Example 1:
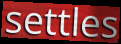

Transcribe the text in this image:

settles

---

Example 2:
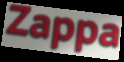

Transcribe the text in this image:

Zappa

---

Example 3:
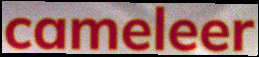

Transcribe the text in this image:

cameleer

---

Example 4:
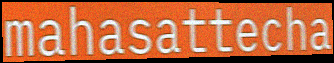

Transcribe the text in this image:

mahasattecha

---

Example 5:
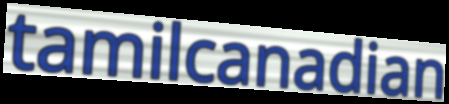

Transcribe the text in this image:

tamilcanadian